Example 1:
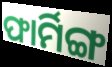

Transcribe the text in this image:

ଫାର୍ମିଙ୍ଗ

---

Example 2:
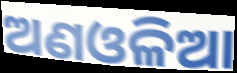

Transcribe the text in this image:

ଅଣଓଳିଆ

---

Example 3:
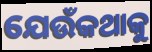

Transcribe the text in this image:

ଯେଉଁକଥାକୁ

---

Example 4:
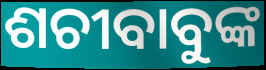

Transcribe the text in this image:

ଶଚୀବାବୁଙ୍କ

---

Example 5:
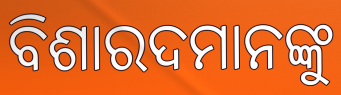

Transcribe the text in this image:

ବିଶାରଦମାନଙ୍କୁ